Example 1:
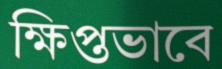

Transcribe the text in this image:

ক্ষিপ্তভাবে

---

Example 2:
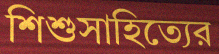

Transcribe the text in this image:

শিশুসাহিত্যের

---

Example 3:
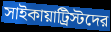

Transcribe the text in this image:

সাইকায়াট্রিস্টদের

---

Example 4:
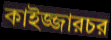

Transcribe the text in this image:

কাইজ্জারচর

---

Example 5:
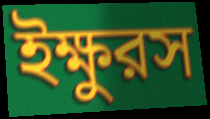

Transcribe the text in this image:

ইক্ষুরস